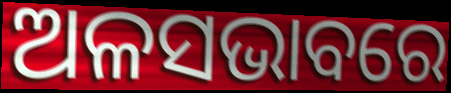
ଅଳସଭାବରେ